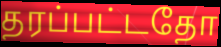
தரப்பட்டதோ